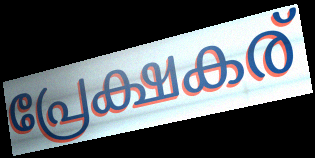
പ്രേക്ഷകര്